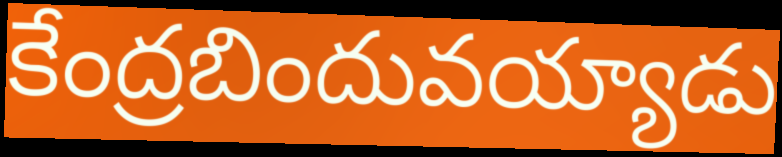
కేంద్రబిందువయ్యాడు